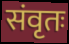
संवृतः